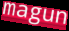
magun